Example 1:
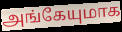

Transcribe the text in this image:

அங்கேயுமாக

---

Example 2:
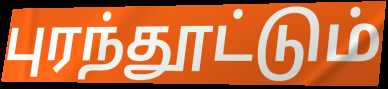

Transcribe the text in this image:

புரந்தூட்டும்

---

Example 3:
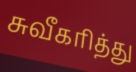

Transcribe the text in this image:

சுவீகரித்து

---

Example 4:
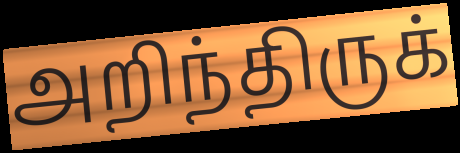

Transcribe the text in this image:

அறிந்திருக்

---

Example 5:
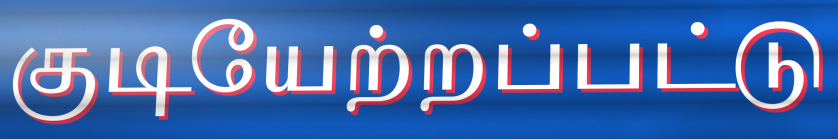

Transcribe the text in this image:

குடியேற்றப்பட்டு